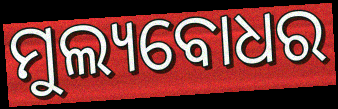
ମୁଲ୍ୟବୋଧର